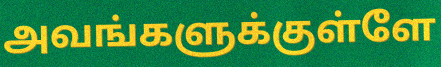
அவங்களுக்குள்ளே